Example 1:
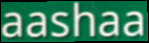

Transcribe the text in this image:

aashaa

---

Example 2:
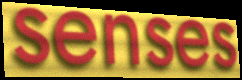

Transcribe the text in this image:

senses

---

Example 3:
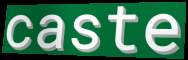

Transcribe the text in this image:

caste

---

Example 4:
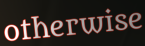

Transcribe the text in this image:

otherwise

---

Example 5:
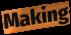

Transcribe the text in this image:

Making